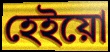
হেইয়ো